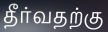
தீர்வதற்கு